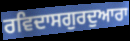
ਰਵਿਦਾਸਗੁਰਦੁਆਰਾ